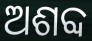
ଅଶବ୍ଦ